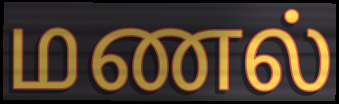
மணல்